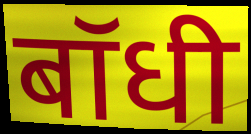
बॉधी